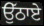
ਉੱਠਾਏ